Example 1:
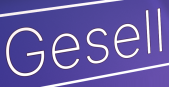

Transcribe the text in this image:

Gesell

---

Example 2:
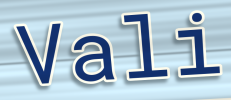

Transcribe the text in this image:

Vali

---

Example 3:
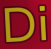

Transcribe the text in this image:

Di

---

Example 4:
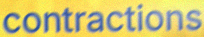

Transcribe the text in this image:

contractions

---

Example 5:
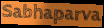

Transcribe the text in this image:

Sabhaparva